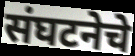
संघटनेचे